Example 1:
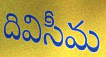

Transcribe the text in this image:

దివిసీమ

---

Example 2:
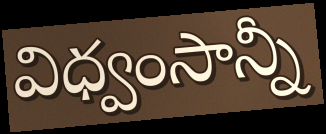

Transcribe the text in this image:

విధ్వంసాన్నీ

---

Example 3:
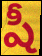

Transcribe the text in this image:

షీ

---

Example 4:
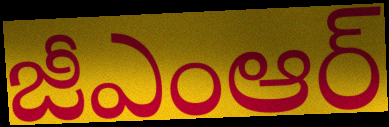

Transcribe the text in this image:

జీఎంఆర్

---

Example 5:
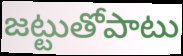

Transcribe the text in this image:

జట్టుతోపాటు